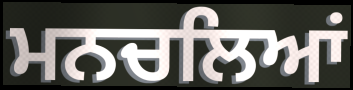
ਮਨਚਲਿਆਂ